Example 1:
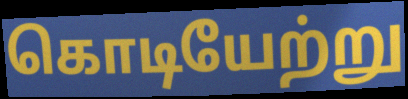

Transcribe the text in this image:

கொடியேற்று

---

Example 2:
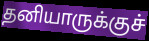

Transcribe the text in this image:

தனியாருக்குச்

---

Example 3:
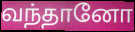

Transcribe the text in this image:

வந்தானோ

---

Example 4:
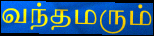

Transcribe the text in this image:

வந்தமரும்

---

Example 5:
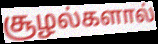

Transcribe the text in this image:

சூழல்களால்